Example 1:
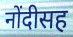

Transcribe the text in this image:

नोंदीसह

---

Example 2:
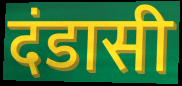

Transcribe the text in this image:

दंडासी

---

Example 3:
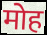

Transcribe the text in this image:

मोह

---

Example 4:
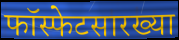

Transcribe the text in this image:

फॉस्फेटसारख्या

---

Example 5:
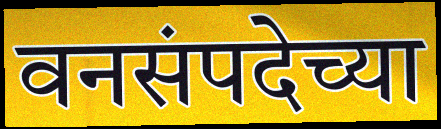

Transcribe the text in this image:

वनसंपदेच्या